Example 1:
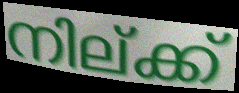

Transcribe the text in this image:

നില്ക്ക്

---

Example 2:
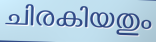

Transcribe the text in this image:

ചിരകിയതും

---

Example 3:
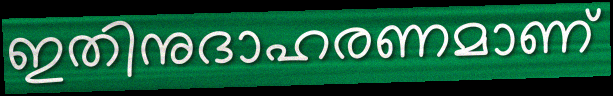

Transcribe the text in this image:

ഇതിനുദാഹരണമാണ്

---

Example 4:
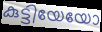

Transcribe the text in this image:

കുട്ടിയേയോ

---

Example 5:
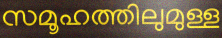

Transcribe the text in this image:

സമൂഹത്തിലുമുള്ള